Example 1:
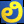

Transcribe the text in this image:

ಲಿ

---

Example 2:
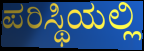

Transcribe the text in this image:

ಪರಿಸ್ಥಿಯಲ್ಲಿ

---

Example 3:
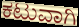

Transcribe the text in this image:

ಕಟುವಾಗಿ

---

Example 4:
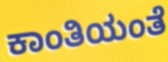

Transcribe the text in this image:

ಕಾಂತಿಯಂತೆ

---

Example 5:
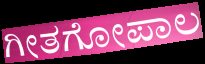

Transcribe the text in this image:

ಗೀತಗೋಪಾಲ